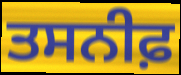
ਤਸਨੀਫ਼